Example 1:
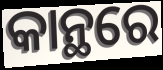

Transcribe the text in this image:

କାନ୍ଥରେ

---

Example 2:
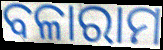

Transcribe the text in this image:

ବଳାରାମ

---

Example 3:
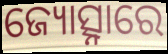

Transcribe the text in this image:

ଜ୍ୟୋତ୍ସ୍ନାରେ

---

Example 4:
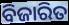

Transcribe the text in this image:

ବିଜାରିତ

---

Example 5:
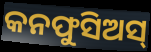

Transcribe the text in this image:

କନଫୁସିଅସ୍